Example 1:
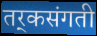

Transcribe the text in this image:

तर्कसंगती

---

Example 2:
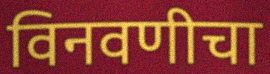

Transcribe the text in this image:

विनवणीचा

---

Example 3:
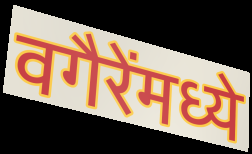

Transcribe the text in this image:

वगैरेंमध्ये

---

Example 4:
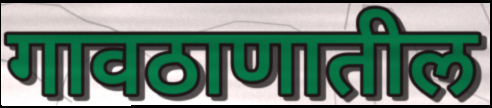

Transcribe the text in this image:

गावठाणातील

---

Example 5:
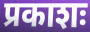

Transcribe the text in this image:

प्रकाशः